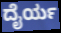
ದೈರ್ಯ